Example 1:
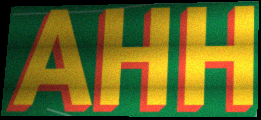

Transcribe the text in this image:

AHH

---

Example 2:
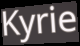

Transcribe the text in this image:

Kyrie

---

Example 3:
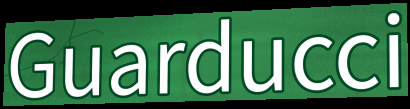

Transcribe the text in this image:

Guarducci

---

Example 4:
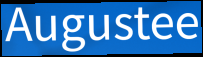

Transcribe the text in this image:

Augustee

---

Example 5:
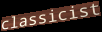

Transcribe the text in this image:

classicist